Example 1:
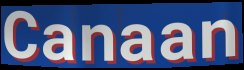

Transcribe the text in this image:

Canaan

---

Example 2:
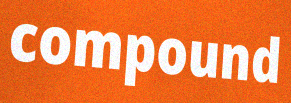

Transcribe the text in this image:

compound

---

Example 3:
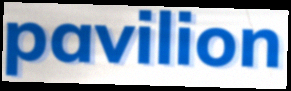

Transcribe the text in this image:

pavilion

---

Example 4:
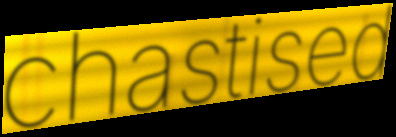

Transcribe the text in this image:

chastised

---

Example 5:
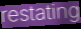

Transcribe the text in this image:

restating